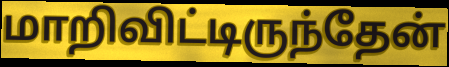
மாறிவிட்டிருந்தேன்